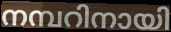
നമ്പറിനായി